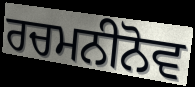
ਰਚਮਨੀਨੋਵ